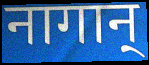
नागान्